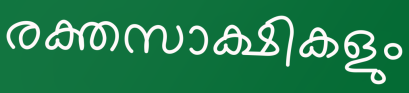
രക്തസാക്ഷികളും